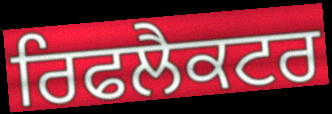
ਰਿਫਲੈਕਟਰ